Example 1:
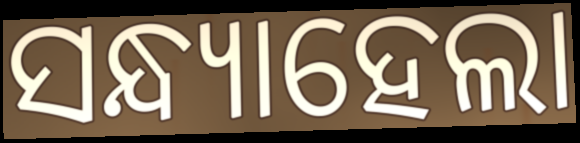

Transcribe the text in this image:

ସନ୍ଧ୍ୟାହେଲା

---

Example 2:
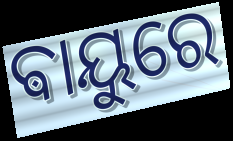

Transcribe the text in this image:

ଵାୟୁରେ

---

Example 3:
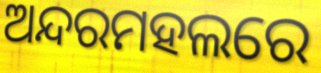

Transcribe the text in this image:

ଅନ୍ଦରମହଲରେ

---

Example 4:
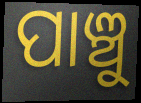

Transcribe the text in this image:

ପାଞ୍ଚୁ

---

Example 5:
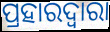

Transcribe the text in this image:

ପ୍ରହାରଦ୍ଵାରା